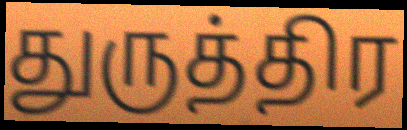
துருத்திர